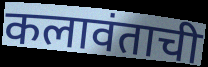
कलावंताची